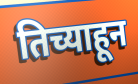
तिच्याहून